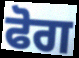
ਫੋਗ